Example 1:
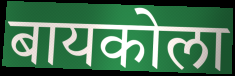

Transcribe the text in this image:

बायकोला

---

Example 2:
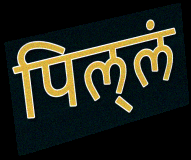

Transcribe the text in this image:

पिल्लं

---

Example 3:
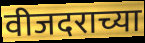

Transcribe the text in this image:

वीजदराच्या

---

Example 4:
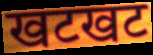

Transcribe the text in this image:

खटखट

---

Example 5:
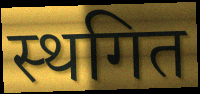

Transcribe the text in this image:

स्थगित